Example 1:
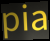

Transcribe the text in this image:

pia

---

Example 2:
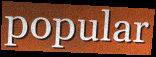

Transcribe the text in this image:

popular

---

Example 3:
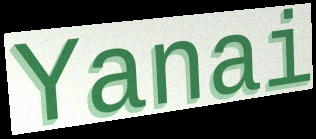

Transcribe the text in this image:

Yanai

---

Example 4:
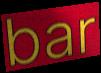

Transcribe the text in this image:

bar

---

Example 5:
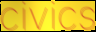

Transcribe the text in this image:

civics